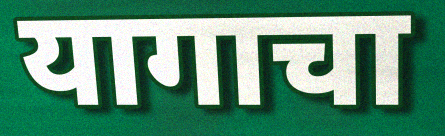
यागाचा